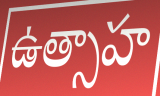
ఉత్సాహ